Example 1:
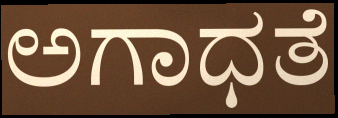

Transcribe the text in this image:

ಅಗಾಧತೆ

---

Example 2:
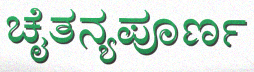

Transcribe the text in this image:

ಚೈತನ್ಯಪೂರ್ಣ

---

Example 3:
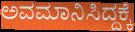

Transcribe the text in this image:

ಅವಮಾನಿಸಿದ್ದಕ್ಕೆ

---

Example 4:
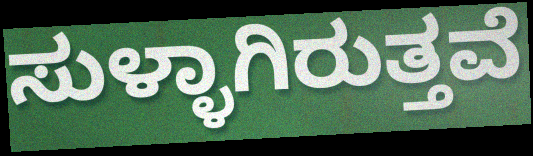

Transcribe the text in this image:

ಸುಳ್ಳಾಗಿರುತ್ತವೆ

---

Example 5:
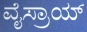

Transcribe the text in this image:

ವೈಸ್ರಾಯ್